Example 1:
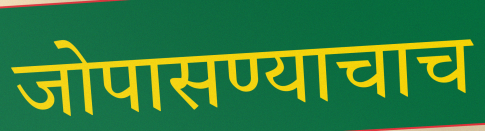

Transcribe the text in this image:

जोपासण्याचाच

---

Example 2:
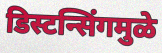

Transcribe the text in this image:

डिस्टन्सिंगमुळे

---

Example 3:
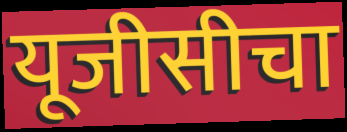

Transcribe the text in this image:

यूजीसीचा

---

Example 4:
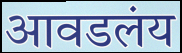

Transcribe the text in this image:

आवडलंय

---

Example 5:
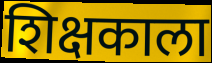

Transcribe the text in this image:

शिक्षकाला